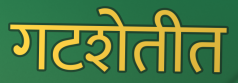
गटशेतीत